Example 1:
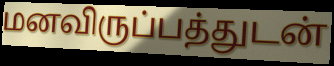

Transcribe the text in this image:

மனவிருப்பத்துடன்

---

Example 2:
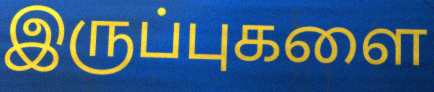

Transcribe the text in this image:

இருப்புகளை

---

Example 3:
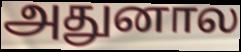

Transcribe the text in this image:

அதுனால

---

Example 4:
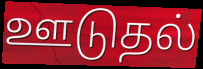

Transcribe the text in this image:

ஊடுதல்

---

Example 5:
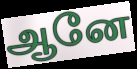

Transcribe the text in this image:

ஆனே